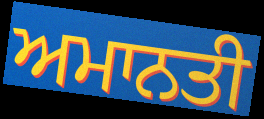
ਅਮਾਨਤੀ